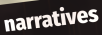
narratives